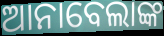
ଆନାବେଲାଙ୍କ